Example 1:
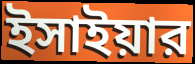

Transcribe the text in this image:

ইসাইয়ার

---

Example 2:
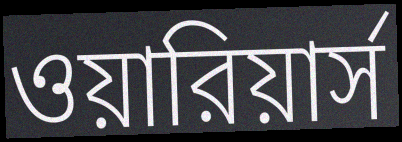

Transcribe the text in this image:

ওয়ারিয়ার্স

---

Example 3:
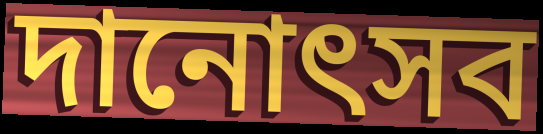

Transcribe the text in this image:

দানোৎসব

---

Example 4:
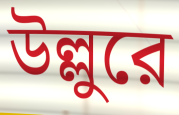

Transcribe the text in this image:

উল্লুরে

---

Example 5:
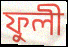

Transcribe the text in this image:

ফুলী